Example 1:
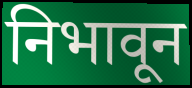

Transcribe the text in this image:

निभावून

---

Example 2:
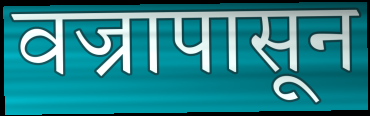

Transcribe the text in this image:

वज्रापासून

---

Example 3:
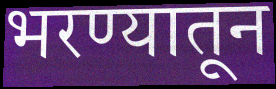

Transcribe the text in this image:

भरण्यातून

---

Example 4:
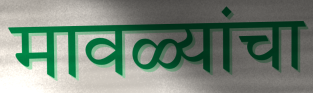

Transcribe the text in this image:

मावळ्यांचा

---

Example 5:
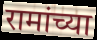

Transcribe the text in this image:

रामांच्या